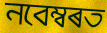
নবেম্বৰত